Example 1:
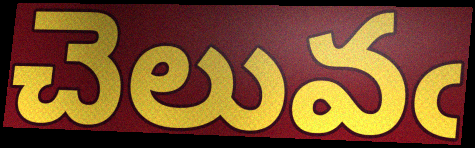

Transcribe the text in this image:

చెలువఁ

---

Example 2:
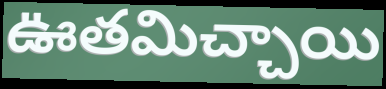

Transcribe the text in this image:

ఊతమిచ్చాయి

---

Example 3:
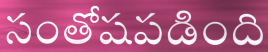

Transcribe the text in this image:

సంతోషపడింది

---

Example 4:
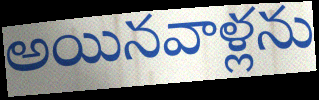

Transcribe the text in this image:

అయినవాళ్లను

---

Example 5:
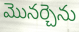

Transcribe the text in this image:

మొనర్చెను